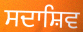
ਸਦਾਸ਼ਿਵ